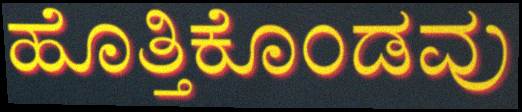
ಹೊತ್ತಿಕೊಂಡವು